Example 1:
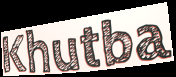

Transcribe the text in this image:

Khutba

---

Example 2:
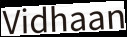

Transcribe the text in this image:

Vidhaan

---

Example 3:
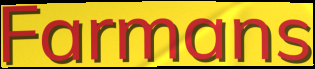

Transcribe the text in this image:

Farmans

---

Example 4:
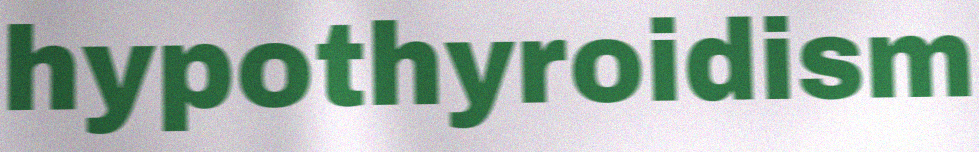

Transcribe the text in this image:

hypothyroidism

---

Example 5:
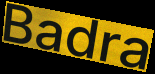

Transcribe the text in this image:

Badra